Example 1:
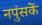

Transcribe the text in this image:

नपुंसकें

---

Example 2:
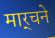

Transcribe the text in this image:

मार्चने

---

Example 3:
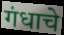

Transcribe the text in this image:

गंधाचे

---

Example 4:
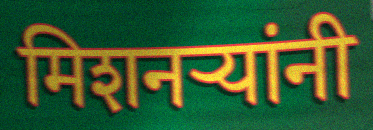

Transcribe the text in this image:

मिशनर्‍यांनी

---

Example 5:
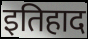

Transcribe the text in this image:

इतिहाद